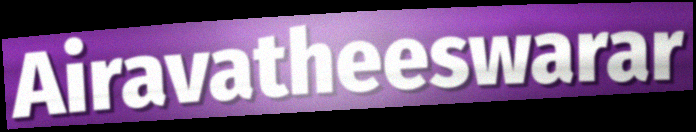
Airavatheeswarar